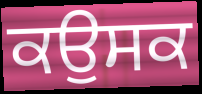
ਕਉਸਕ